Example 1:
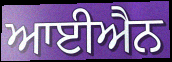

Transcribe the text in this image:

ਆਈਐਨ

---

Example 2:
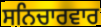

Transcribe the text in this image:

ਸਨਿਚਾਰਵਾਰ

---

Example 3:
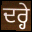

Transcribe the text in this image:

ਦਰ੍ਹੇ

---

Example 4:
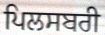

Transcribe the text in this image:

ਪਿਲਸਬਰੀ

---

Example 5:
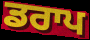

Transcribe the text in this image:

ਡਰਾਪ